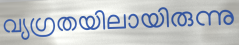
വ്യഗ്രതയിലായിരുന്നു